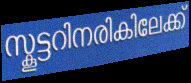
സ്കൂട്ടറിനരികിലേക്ക്